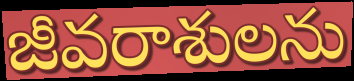
జీవరాశులను